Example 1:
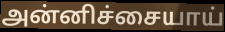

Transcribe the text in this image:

அன்னிச்சையாய்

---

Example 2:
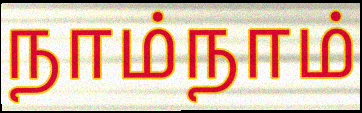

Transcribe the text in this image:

நாம்நாம்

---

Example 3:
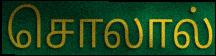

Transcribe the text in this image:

சொலால்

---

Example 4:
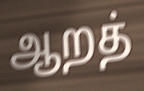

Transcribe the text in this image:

ஆறத்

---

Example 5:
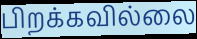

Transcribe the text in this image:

பிறக்கவில்லை